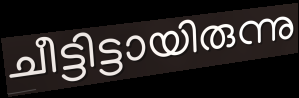
ചീട്ടിട്ടായിരുന്നു